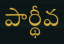
పార్థీవ